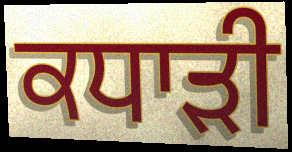
ਕਧਾੜੀ